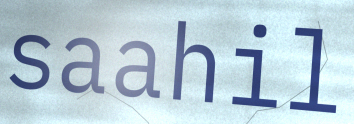
saahil